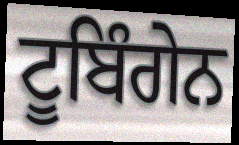
ਟੂਬਿੰਗੇਨ